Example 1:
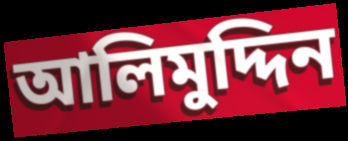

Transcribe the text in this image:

আলিমুদ্দিন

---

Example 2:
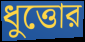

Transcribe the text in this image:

ধুত্তোর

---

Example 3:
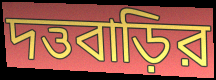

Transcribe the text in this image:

দত্তবাড়ির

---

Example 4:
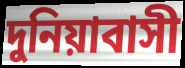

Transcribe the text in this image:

দুনিয়াবাসী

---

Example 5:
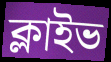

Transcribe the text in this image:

ক্লাইভ